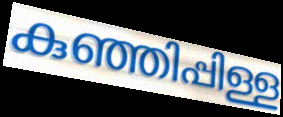
കുഞ്ഞിപ്പിള്ള